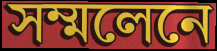
সম্মলেনে